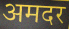
अमदर